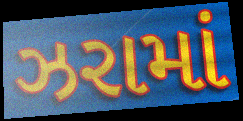
ઝરામાં